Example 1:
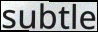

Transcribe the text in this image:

subtle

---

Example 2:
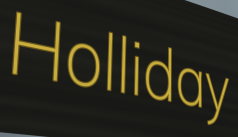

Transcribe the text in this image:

Holliday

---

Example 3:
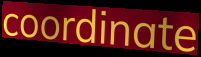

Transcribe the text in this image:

coordinate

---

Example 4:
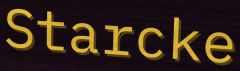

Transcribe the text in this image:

Starcke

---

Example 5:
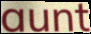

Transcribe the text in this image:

aunt